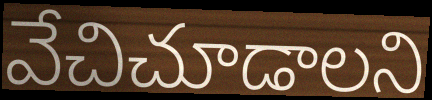
వేచిచూడాలని